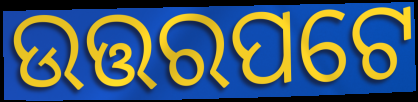
ଉତ୍ତରପଟେ